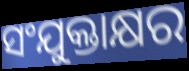
ସଂଯୁକ୍ତାକ୍ଷର